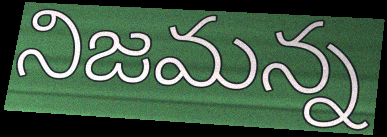
నిజమన్న